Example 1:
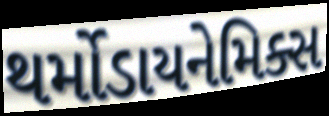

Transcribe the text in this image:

થર્મોડાયનેમિક્સ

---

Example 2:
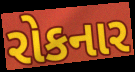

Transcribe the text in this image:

રોકનાર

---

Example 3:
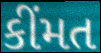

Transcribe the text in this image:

કીંમત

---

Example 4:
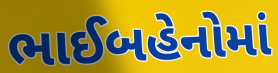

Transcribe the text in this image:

ભાઈબહેનોમાં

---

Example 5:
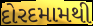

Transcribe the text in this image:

દોરદમામથી